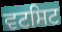
ਵਟਸਿਟ